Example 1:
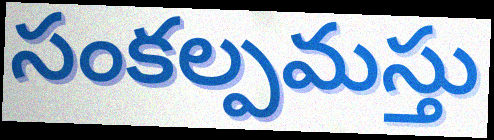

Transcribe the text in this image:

సంకల్పమస్తు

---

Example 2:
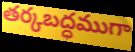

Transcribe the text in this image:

తర్కబద్ధముగా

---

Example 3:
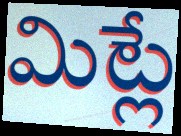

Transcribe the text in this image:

మిట్లే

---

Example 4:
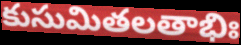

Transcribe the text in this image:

కుసుమితలతాభిః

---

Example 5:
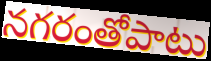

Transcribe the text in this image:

నగరంతోపాటు